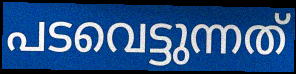
പടവെട്ടുന്നത്